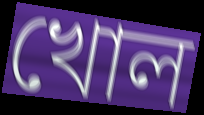
খোল